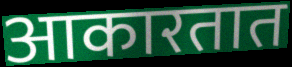
आकारतात